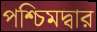
পশ্চিমদ্বার